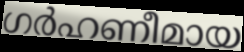
ഗർഹണീമായ